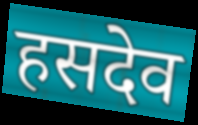
हसदेव